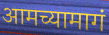
आमच्यामागं